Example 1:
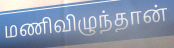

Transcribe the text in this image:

மணிவிழுந்தான்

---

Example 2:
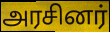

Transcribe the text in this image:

அரசினர்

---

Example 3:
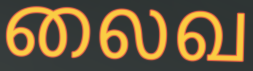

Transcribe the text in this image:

லைவ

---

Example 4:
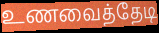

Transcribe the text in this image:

உணவைத்தேடி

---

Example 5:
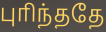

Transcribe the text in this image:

புரிந்ததே